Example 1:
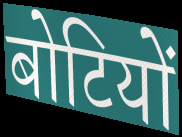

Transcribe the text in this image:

बोटियों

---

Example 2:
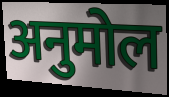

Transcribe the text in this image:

अनुमोल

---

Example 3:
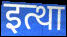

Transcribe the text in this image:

इत्था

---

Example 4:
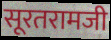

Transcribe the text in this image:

सूरतरामजी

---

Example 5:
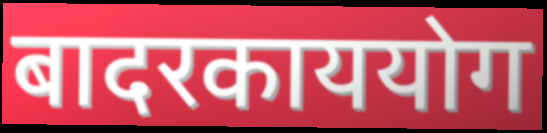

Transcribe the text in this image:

बादरकाययोग